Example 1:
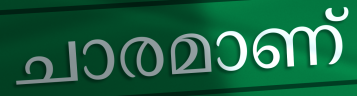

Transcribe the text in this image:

ചാരമാണ്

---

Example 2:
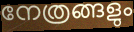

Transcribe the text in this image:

നേത്രങ്ങളും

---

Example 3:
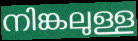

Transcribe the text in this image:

നിങ്കലുള്ള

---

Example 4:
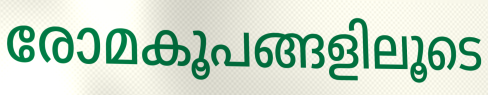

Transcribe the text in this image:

രോമകൂപങ്ങളിലൂടെ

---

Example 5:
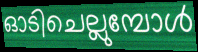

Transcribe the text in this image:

ഓടിചെല്ലുമ്പോൾ